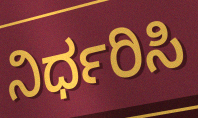
ನಿರ್ಧರಿಸಿ